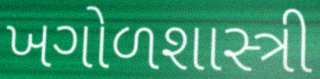
ખગોળશાસ્ત્રી